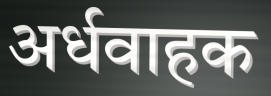
अर्धवाहक